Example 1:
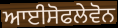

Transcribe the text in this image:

ਆਈਸੋਫਲੇਵੋਨ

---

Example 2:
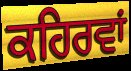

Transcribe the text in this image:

ਕਹਿਰਵਾਂ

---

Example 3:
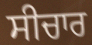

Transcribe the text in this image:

ਸੀਚਾਰ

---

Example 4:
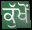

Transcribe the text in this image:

ਕੁੱਖੋਂ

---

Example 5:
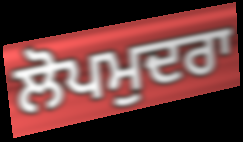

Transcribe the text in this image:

ਲੋਪਮੁਦਰਾ